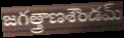
జగత్త్రాణశౌండమ్